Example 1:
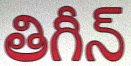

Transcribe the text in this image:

తిగీన్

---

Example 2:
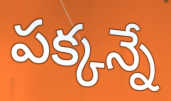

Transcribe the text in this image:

పక్కన్నే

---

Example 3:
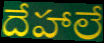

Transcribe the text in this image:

దేహాలే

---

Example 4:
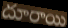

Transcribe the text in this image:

దూరాయి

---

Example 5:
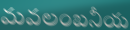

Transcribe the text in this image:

మవలంబనీయ